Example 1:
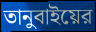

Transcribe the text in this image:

তানুবাইয়ের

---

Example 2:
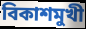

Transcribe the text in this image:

বিকাশমুখী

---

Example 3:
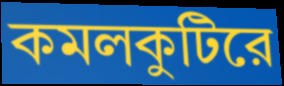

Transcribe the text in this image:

কমলকুটিরে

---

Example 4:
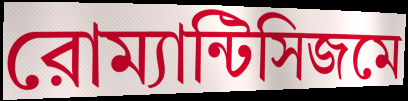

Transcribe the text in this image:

রোম্যান্টিসিজমে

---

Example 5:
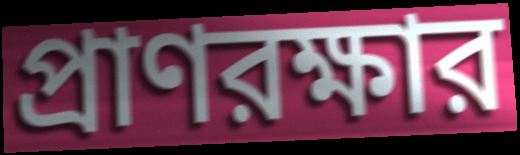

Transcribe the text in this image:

প্রাণরক্ষার